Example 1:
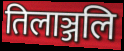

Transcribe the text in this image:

तिलाञ्जलि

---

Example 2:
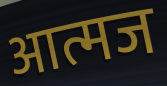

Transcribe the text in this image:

आत्मज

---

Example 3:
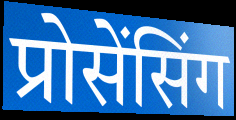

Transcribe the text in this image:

प्रोसेंसिंग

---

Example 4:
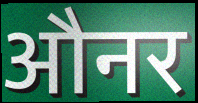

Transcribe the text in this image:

औनर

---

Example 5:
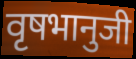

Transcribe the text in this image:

वृषभानुजी